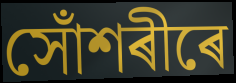
সোঁশৰীৰে